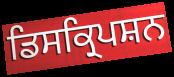
ਡਿਸਕ੍ਰਿਪਸ਼ਨ